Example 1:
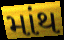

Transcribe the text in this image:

માંથ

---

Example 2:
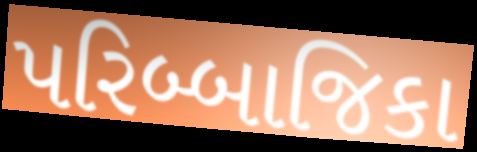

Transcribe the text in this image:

પરિબ્બાજિકા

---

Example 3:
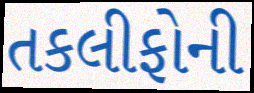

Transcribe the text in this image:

તકલીફોની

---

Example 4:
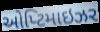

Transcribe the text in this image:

ઓપ્ટિમાઇઝર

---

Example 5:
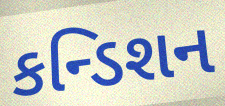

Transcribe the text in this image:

કન્ડિશન